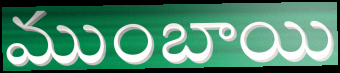
ముంబాయి